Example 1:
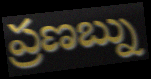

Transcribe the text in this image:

ప్రణబ్ను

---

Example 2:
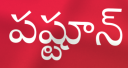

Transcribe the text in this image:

పష్టూన్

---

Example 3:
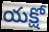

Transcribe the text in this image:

యక్షో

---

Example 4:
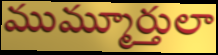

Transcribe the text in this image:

ముమ్మూర్తులా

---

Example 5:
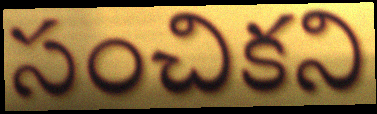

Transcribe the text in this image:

సంచికని